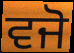
ਵਜੋ